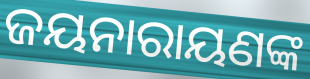
ଜୟନାରାୟଣଙ୍କ